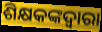
ଶିକ୍ଷକଙ୍କଦ୍ଵାରା